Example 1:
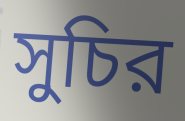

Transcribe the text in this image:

সুচির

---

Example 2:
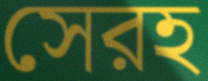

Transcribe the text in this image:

সেরহ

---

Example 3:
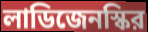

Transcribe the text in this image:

লাডিজেনস্কির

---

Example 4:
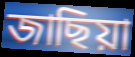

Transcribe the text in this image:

জাছিয়া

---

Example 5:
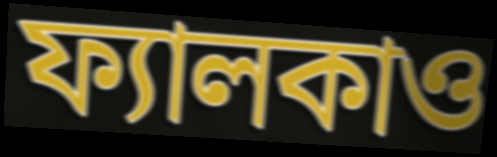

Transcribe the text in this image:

ফ্যালকাও